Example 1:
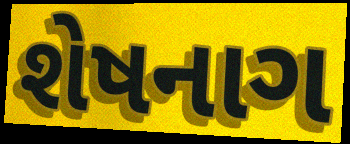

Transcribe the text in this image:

શેષનાગ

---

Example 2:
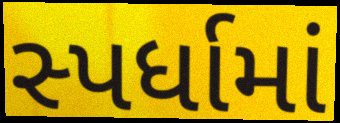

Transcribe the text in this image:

સ્પર્ધામાં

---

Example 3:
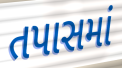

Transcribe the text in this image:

તપાસમાં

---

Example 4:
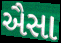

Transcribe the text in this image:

ઐસા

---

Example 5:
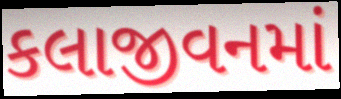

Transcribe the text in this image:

કલાજીવનમાં